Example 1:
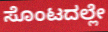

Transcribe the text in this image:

ಸೊಂಟದಲ್ಲೇ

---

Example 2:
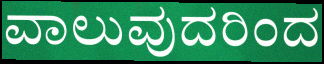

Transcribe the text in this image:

ವಾಲುವುದರಿಂದ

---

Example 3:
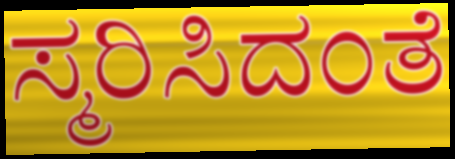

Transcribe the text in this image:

ಸ್ಮರಿಸಿದಂತೆ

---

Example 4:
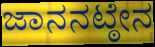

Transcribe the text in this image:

ಜಾನನಟ್ಠೇನ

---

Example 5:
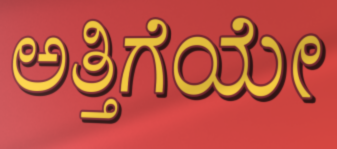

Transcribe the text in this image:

ಅತ್ತಿಗೆಯೇ